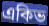
একিভ